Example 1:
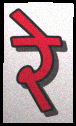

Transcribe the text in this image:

रे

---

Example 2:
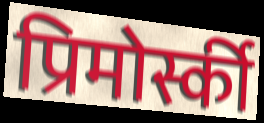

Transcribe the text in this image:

प्रिमोर्स्की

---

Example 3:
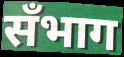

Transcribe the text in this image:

सँभाग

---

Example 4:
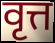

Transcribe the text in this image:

वृत्त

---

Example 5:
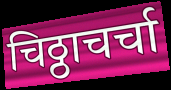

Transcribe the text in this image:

चिठ्ठाचर्चा